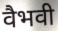
वैभवी